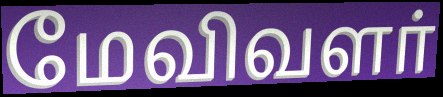
மேவிவளர்